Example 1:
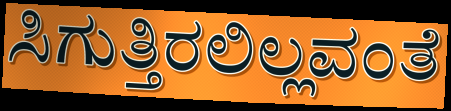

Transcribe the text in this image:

ಸಿಗುತ್ತಿರಲಿಲ್ಲವಂತೆ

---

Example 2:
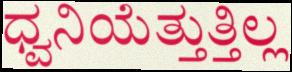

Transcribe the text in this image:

ಧ್ವನಿಯೆತ್ತುತ್ತಿಲ್ಲ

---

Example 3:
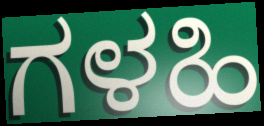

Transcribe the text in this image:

ಗಳಹಿ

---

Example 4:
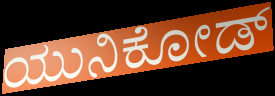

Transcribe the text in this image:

ಯುನಿಕೋಡ್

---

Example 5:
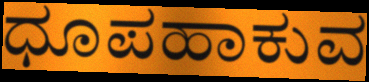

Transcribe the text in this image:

ಧೂಪಹಾಕುವ